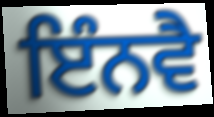
ਇੰਨਵੈ